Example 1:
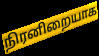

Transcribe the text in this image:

நிரனிறையாக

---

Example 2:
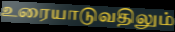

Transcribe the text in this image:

உரையாடுவதிலும்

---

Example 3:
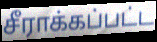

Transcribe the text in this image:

சீராக்கப்பட்ட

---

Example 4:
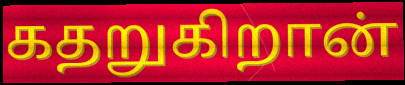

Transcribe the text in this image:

கதறுகிறான்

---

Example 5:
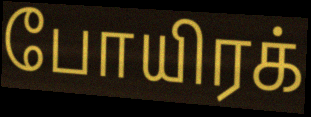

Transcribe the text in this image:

போயிரக்